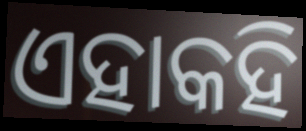
ଏହାକହି